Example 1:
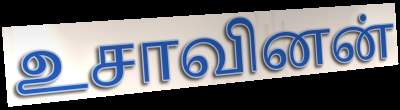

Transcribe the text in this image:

உசாவினன்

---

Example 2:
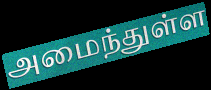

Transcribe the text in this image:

அமைந்துள்ள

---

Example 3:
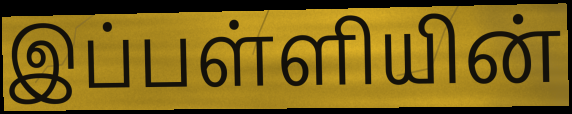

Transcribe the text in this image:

இப்பள்ளியின்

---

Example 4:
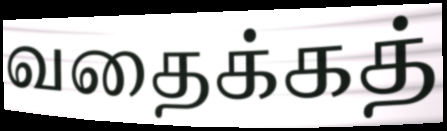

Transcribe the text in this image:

வதைக்கத்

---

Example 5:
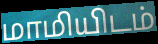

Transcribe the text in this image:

மாமியிடம்